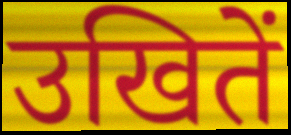
उखितें